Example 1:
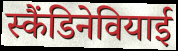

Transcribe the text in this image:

स्कैंडिनेवियाई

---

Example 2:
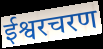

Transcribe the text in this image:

ईश्वरचरण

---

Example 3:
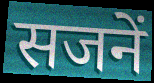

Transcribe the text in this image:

सजनें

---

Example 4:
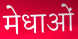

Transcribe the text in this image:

मेधाओं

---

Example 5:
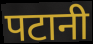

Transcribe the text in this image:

पटानी